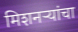
मिशनऱ्यांचा